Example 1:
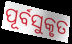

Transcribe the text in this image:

ପୂର୍ବସୁକୃତ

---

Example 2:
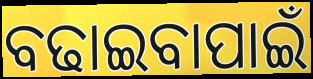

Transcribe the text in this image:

ବଢାଇବାପାଇଁ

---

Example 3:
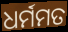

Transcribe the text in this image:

ଧର୍ମମତ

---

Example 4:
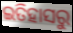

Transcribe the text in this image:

ଇତିହାସରୁ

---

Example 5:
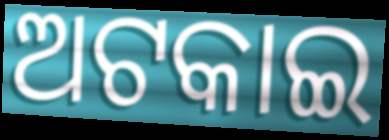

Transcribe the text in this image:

ଅଟକାଇ